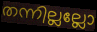
തന്നില്ലല്ലോ